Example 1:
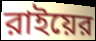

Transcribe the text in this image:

রাইয়ের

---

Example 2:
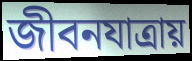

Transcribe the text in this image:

জীবনযাত্রায়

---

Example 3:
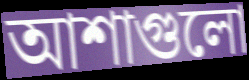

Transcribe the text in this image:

আশাগুলো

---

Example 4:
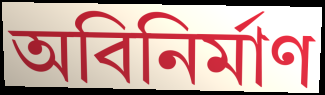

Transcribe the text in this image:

অবিনির্মাণ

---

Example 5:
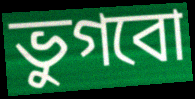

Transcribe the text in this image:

ভুগবো